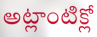
అట్లాంటిక్లో